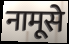
नामूसे